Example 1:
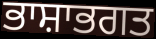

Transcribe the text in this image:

ਭਾਸ਼ਾਭਗਤ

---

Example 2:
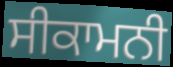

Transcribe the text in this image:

ਸੀਕਾਮਨੀ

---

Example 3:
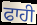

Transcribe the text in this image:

ਫਾਹੀ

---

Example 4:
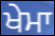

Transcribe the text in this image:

ਖੇਮਾ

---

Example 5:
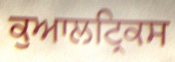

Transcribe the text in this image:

ਕੁਆਲਟ੍ਰਿਕਸ